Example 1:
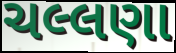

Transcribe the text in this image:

ચલ્લણા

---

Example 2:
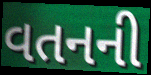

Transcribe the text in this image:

વતનની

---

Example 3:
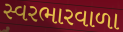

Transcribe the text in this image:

સ્વરભારવાળા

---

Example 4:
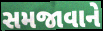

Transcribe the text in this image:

સમજાવાને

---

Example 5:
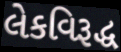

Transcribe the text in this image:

લેકવિરૂદ્ધ